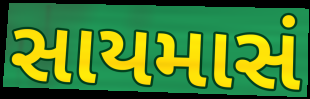
સાયમાસં